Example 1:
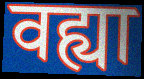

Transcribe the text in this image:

वह्या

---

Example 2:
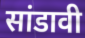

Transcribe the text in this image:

सांडावी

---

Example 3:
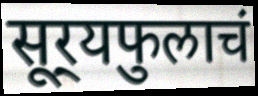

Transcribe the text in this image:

सूर्यफुलाचं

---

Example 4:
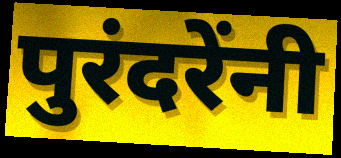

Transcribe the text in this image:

पुरंदरेंनी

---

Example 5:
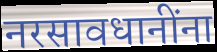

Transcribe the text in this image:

नरसावधानींना